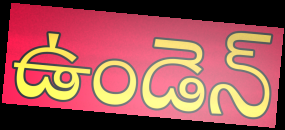
ఉండెన్